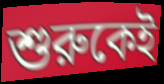
শুরুকেই